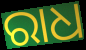
ରାଧ